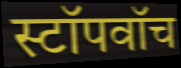
स्टॉपवॉच